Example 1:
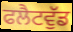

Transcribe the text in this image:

ਫਲੈਟਵੁੱਡ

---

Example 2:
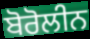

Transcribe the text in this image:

ਬੋਰੋਲੀਨ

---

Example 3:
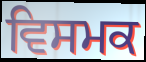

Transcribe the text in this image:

ਵਿਸਮਕ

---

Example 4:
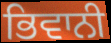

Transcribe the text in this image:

ਭਿਵਾਨੀ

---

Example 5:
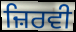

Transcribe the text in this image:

ਜ਼ਿਰਵੀ